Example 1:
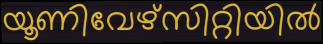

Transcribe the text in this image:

യൂണിവേഴ്സിറ്റിയിൽ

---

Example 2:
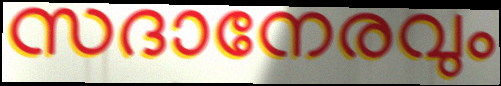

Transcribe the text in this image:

സദാനേരവും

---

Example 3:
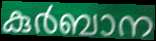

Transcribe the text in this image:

കുർബാന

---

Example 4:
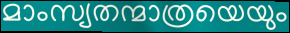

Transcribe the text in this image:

മാംസ്യതന്മാത്രയെയും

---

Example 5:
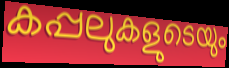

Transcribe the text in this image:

കപ്പലുകളുടെയും